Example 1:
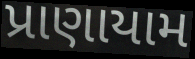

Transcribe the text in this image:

પ્રાણાયામ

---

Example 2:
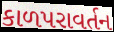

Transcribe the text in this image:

કાળપરાવર્તન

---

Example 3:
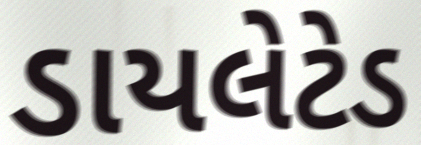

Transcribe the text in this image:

ડાયલેટેડ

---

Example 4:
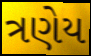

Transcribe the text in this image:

ત્રણેય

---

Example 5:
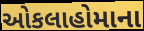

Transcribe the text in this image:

ઓકલાહોમાના